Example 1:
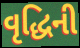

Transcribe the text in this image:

વૃદ્ધિની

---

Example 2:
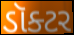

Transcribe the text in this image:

ડૉક્ટર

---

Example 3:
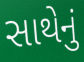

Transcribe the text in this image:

સાથેનું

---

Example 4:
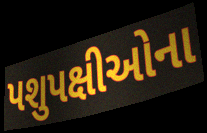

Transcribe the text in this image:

પશુપક્ષીઓના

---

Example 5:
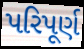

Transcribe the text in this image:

પરિપૂર્ણ